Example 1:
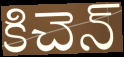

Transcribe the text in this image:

కిచెన్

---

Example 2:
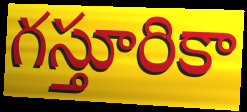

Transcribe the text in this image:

గస్తూరికా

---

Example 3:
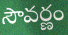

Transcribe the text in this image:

సౌవర్ణం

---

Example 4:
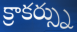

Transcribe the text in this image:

క్రాకర్స్ను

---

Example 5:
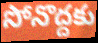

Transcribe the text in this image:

సోనొద్దకు